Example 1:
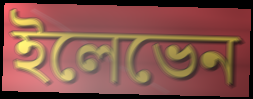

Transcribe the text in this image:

ইলেভেন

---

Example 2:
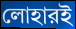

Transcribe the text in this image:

লোহারই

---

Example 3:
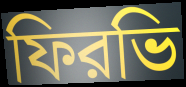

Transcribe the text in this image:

ফিরভি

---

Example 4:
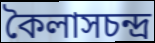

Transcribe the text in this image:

কৈলাসচন্দ্র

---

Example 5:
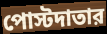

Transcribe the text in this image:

পোস্টদাতার